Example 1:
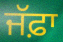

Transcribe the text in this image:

ਜੱਫ਼ਾ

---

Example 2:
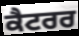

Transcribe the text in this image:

ਕੈਟਰਰ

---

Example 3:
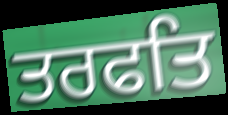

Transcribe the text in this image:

ਤਰਫਤਿ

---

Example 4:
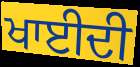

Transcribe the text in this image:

ਖਾਈਦੀ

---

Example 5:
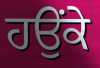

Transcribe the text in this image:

ਹਉਂਕੇ